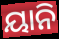
ୟାନି